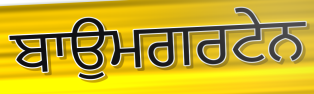
ਬਾਉਮਗਰਟੇਨ